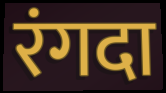
रंगदा